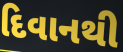
દિવાનથી